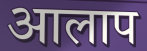
आलाप